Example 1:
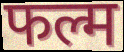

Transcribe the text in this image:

फल्म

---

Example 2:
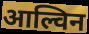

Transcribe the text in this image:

आल्विन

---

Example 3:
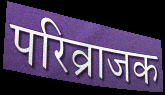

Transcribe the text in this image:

परिव्राजक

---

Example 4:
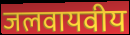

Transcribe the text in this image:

जलवायवीय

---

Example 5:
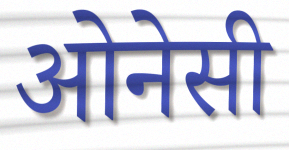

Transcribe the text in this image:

ओनेसी